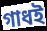
গাধই